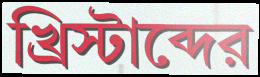
খ্রিস্টাব্দের